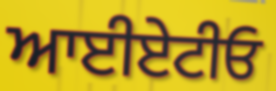
ਆਈਏਟੀਓ